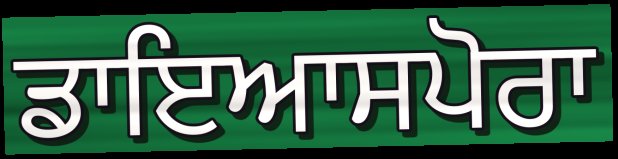
ਡਾਇਆਸਪੋਰਾ